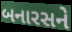
બનારસને